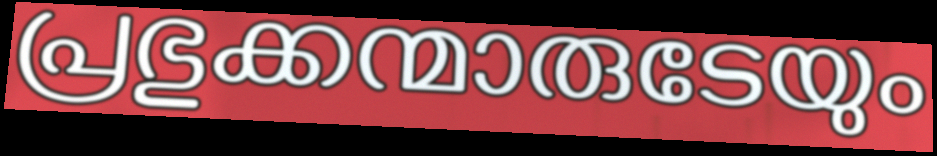
പ്രഭുക്കന്മാരുടേയും